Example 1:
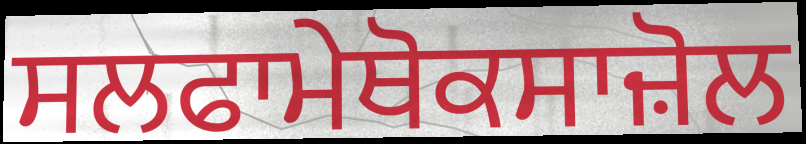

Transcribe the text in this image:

ਸਲਫਾਮੇਥੋਕਸਾਜ਼ੋਲ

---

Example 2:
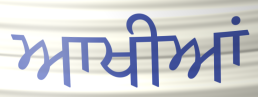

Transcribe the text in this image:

ਆਖੀਆਂ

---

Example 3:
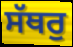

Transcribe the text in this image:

ਸੱਥਰੁ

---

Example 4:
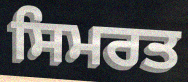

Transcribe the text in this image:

ਸਿਮਰਤ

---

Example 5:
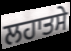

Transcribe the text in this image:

ਲਹਾਤਸੇ